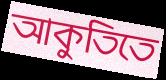
আকুতিতে